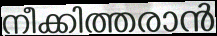
നീക്കിത്തരാൻ